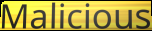
Malicious